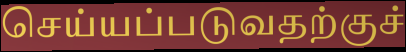
செய்யப்படுவதற்குச்